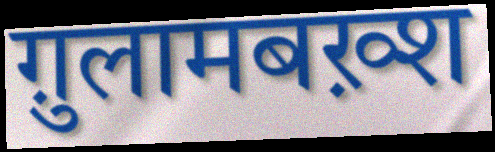
ग़ुलामबख़्श